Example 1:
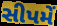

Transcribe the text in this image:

સીપમેં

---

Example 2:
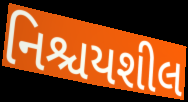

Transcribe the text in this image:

નિશ્ચયશીલ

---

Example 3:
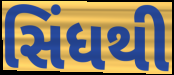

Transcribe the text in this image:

સિંધથી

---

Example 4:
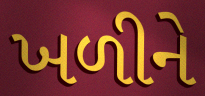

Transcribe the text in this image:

ખળીને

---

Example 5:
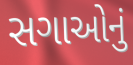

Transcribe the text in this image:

સગાઓનું